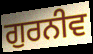
ਗੁਰਨੀਵ